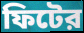
ফিটের